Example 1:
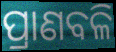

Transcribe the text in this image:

ପ୍ରାଣବଳି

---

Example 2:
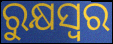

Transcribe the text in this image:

ରୁକ୍ଷସ୍ୱର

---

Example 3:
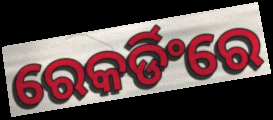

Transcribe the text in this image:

ରେକର୍ଡିଂରେ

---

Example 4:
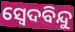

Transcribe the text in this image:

ସ୍ଵେଦବିନ୍ଦୁ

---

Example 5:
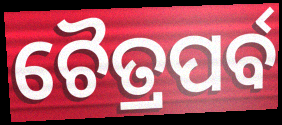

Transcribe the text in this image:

ଚୈତ୍ରପର୍ବ